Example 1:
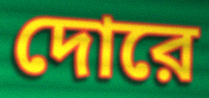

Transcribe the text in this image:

দোরে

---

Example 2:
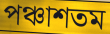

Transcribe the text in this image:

পঞ্চাশতম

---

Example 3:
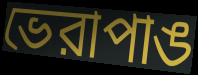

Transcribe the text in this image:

ভেরাপাঙ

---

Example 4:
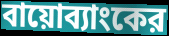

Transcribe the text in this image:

বায়োব্যাংকের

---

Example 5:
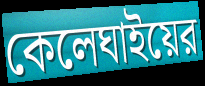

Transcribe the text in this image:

কেলেঘাইয়ের